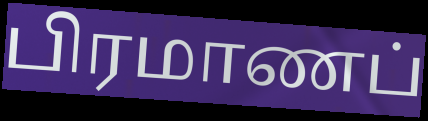
பிரமாணப்